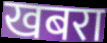
खबरा